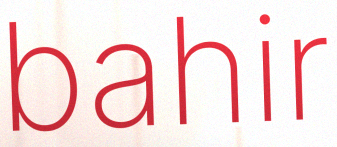
bahir